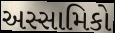
અસ્સામિકો